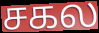
சகல